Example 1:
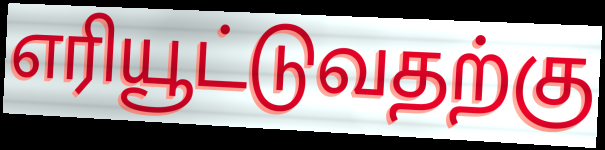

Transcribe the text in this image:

எரியூட்டுவதற்கு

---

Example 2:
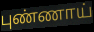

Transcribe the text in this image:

புண்ணாய்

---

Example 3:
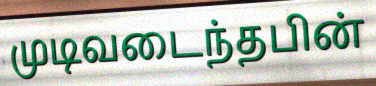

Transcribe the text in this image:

முடிவடைந்தபின்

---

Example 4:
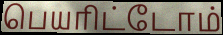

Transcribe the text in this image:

பெயரிட்டோம்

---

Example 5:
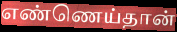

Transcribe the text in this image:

எண்ணெய்தான்